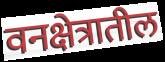
वनक्षेत्रातील